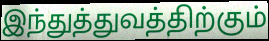
இந்துத்துவத்திற்கும்